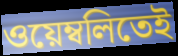
ওয়েম্বলিতেই